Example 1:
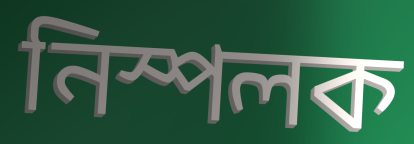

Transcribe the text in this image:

নিস্পলক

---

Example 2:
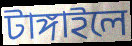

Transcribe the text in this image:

টাঙ্গাইলে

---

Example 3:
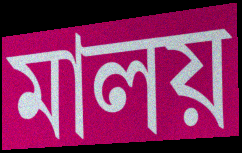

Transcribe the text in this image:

মালয়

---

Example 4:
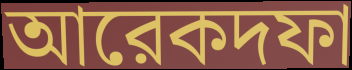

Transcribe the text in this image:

আরেকদফা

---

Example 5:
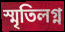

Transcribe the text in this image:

স্মৃতিলগ্ন